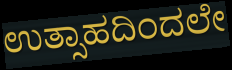
ಉತ್ಸಾಹದಿಂದಲೇ